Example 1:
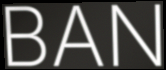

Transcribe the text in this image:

BAN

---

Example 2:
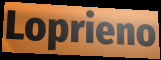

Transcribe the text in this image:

Loprieno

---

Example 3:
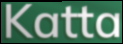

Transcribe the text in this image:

Katta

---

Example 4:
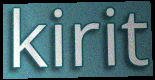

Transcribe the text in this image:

kirit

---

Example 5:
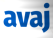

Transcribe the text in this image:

avaj